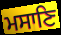
ਮਸਾਣਿ